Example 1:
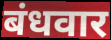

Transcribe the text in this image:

बंधवार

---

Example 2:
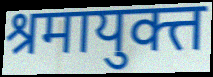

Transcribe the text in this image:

श्रमायुक्त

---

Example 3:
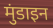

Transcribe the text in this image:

मुंडाइन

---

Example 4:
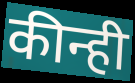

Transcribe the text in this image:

कीन्ही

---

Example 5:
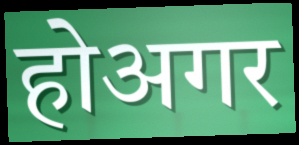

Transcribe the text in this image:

होअगर